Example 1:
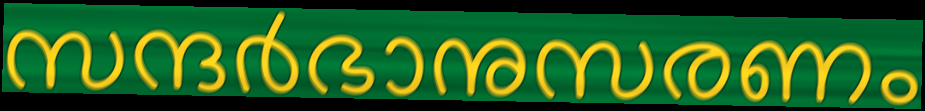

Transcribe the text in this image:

സന്ദർഭാനുസരണം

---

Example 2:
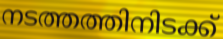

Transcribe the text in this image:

നടത്തത്തിനിടക്ക്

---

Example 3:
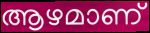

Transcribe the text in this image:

ആഴമാണ്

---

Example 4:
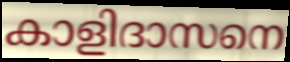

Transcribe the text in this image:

കാളിദാസനെ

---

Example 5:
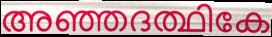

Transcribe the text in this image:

അഞ്ഞദത്ഥികേ